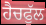
ਹੈਚਫੁੱਲ